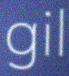
gil